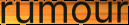
rumour